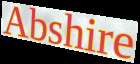
Abshire